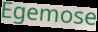
Egemose